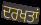
ਦਰਖਤਾਂ